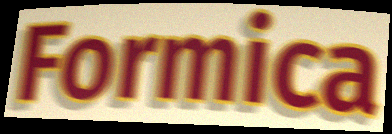
Formica